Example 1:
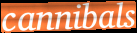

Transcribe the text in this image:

cannibals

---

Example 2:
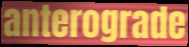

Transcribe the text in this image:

anterograde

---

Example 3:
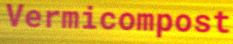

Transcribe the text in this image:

Vermicompost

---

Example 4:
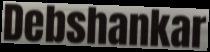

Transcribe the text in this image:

Debshankar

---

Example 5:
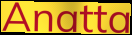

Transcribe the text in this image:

Anatta